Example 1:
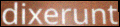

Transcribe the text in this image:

dixerunt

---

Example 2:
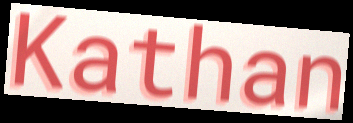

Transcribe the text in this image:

Kathan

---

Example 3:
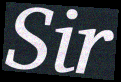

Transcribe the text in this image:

Sir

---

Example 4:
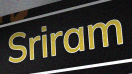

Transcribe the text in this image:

Sriram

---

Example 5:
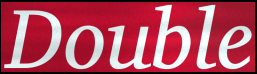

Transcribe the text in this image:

Double